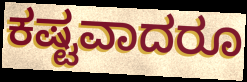
ಕಷ್ಟವಾದರೂ